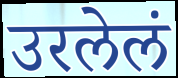
उरलेलं